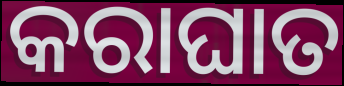
କରାଘାତ